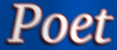
Poet